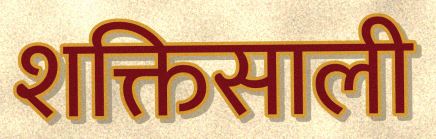
शक्तिसाली